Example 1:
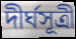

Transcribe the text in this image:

দীর্ঘসূত্রী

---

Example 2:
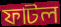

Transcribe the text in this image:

ফাটল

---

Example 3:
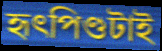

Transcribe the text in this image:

হৃৎপিণ্ডটাই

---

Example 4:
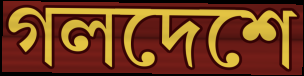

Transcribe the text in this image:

গলদেশে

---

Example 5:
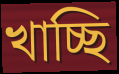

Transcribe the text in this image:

খাচ্ছি